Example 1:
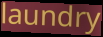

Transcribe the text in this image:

laundry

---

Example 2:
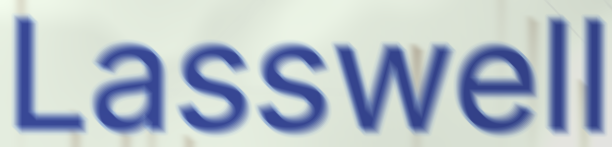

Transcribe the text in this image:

Lasswell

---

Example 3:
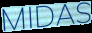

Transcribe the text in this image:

MIDAS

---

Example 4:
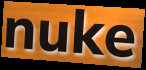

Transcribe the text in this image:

nuke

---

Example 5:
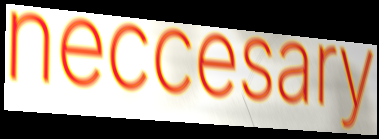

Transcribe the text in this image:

neccesary